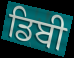
ਡਿਬੀ